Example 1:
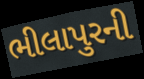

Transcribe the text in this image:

ભીલાપુરની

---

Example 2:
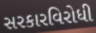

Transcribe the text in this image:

સરકારવિરોધી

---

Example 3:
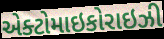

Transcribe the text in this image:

એક્ટોમાઇકોરાઇઝી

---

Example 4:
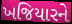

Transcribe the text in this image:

ખજિયારને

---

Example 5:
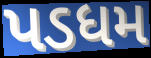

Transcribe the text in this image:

પડધમ